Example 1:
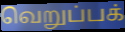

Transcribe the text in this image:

வெறுப்பக்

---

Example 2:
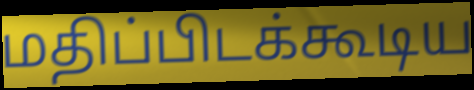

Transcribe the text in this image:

மதிப்பிடக்கூடிய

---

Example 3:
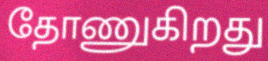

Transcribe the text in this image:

தோணுகிறது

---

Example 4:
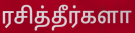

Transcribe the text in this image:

ரசித்தீர்களா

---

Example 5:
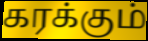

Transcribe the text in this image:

கரக்கும்